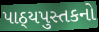
પાઠ્યપુસ્તકનો